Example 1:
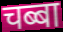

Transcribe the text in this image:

चब्बा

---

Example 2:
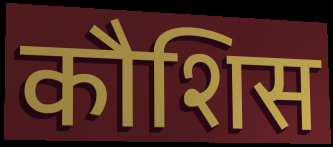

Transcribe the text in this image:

कौशिस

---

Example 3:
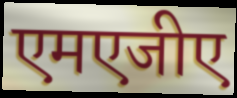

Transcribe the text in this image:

एमएजीए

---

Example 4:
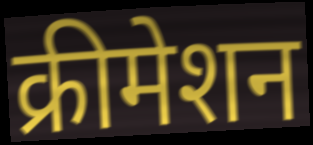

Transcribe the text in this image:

क्रीमेशन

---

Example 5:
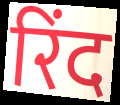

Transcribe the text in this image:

रिंद